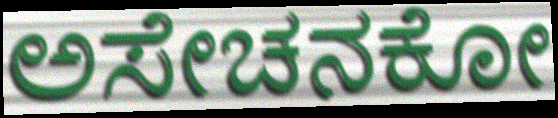
ಅಸೇಚನಕೋ